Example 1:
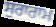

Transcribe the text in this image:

ਸੁਰਾਰਾਮ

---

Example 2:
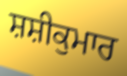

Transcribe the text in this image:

ਸ਼ਸ਼ੀਕੁਮਾਰ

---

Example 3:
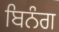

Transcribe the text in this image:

ਬਿਨੰਗ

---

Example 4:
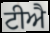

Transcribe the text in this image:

ਟੀਐ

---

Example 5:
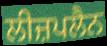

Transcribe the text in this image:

ਲੀਜ਼ਪਲੈਨ